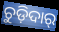
ଚୁଡ଼ିଦାର୍